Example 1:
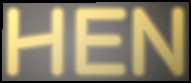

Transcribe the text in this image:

HEN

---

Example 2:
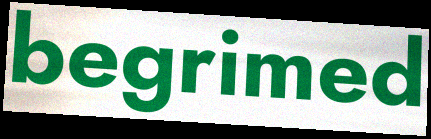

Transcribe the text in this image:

begrimed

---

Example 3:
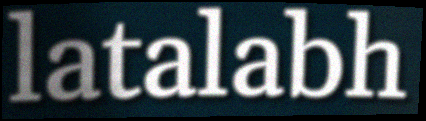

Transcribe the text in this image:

latalabh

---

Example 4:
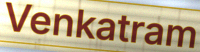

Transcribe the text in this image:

Venkatram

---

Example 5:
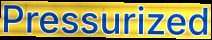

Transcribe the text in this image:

Pressurized